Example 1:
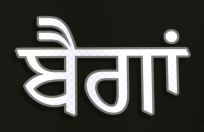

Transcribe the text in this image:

ਬੈਗਾਂ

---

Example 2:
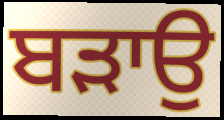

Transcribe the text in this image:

ਬਡ਼ਾਉ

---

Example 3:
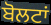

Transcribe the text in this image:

ਬੋਲਟਾਂ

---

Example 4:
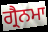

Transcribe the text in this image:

ਗ੍ਰੈਨਮਾ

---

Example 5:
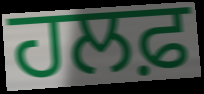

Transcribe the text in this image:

ਹਲਫ਼